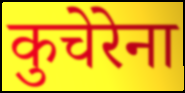
कुचेरेना